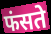
फंसते